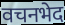
वचनभेद